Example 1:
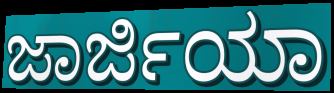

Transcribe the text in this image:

ಜಾರ್ಜಿಯಾ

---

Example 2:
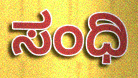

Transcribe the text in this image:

ಸಂಧಿ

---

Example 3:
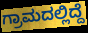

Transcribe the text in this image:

ಗ್ರಾಮದಲ್ಲಿದ್ದೆ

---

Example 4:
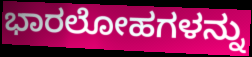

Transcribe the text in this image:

ಭಾರಲೋಹಗಳನ್ನು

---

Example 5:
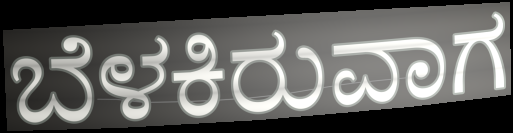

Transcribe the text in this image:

ಬೆಳಕಿರುವಾಗ